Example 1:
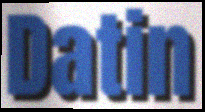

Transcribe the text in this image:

Datin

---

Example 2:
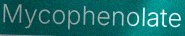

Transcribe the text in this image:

Mycophenolate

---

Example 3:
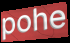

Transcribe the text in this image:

pohe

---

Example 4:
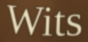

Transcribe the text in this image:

Wits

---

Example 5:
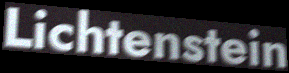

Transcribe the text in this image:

Lichtenstein